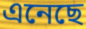
এনেছে